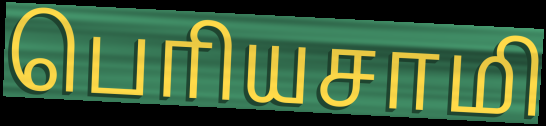
பெரியசாமி